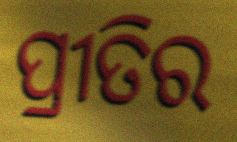
ପ୍ରୀତିର